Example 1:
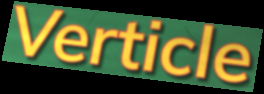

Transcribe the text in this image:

Verticle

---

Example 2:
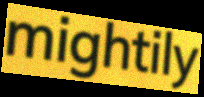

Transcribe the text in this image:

mightily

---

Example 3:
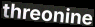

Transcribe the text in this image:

threonine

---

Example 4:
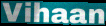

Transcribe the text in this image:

Vihaan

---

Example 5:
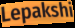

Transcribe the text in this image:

Lepakshi